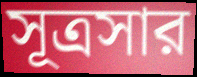
সূত্রসার